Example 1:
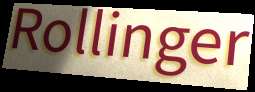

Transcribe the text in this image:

Rollinger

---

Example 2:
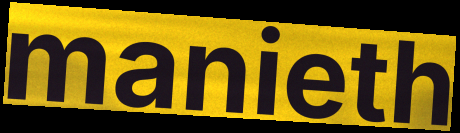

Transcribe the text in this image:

manieth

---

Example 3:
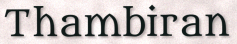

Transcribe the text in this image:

Thambiran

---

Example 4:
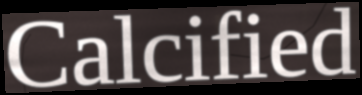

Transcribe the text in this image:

Calcified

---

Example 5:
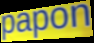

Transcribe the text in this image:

papon